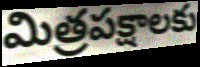
మిత్రపక్షాలకు